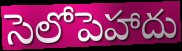
సెలోపెహాదు